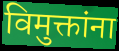
विमुक्तांना